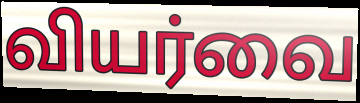
வியர்வை